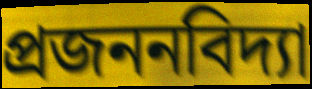
প্রজননবিদ্যা